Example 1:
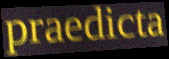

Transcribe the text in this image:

praedicta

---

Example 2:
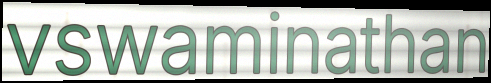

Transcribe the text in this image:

vswaminathan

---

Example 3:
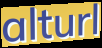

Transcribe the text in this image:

alturl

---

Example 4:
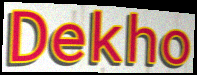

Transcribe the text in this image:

Dekho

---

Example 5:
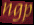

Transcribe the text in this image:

ngp